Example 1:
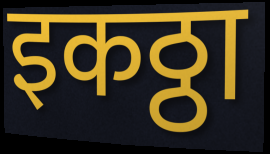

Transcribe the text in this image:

इकठ्ठा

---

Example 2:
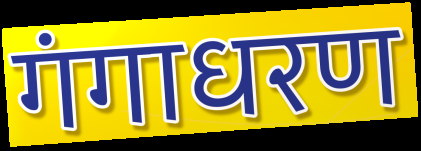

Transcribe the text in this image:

गंगाधरण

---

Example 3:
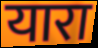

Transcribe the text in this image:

यारा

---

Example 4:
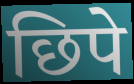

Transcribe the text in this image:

छिपे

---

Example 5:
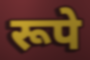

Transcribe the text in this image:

रूपे